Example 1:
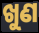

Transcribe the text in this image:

ଖୁଣ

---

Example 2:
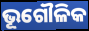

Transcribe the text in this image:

ଭୂଗୌଳିକ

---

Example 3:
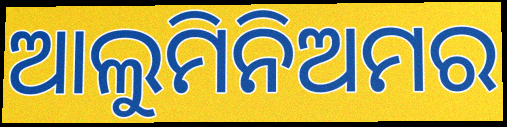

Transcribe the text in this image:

ଆଲୁମିନିଅମର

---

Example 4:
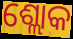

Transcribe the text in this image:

ଶ୍ଲୋକ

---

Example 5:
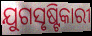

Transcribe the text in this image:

ଯୁଗସୃଷ୍ଟିକାରୀ